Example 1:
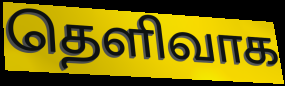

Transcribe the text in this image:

தெளிவாக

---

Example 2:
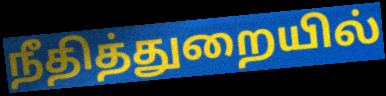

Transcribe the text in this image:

நீதித்துறையில்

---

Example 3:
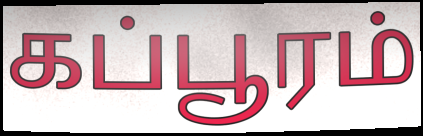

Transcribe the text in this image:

கப்பூரம்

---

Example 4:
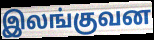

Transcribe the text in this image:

இலங்குவன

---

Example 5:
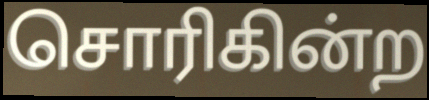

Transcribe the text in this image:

சொரிகின்ற